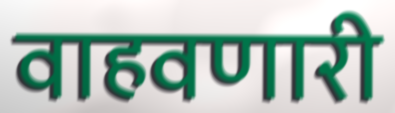
वाहवणारी